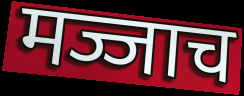
मज्जाच